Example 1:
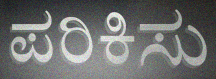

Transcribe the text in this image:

ಪರಿಕಿಸು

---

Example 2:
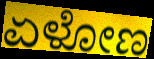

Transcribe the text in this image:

ಏಳೋಣ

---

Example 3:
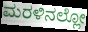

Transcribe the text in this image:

ಮರಳಿನಲ್ಲೋ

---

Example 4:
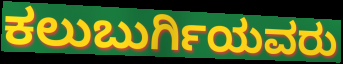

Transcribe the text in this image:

ಕಲುಬುರ್ಗಿಯವರು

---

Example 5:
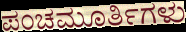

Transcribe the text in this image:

ಪಂಚಮೂರ್ತಿಗಳು